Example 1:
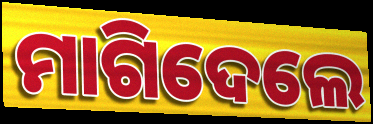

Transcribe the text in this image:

ମାଗିଦେଲେ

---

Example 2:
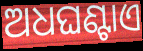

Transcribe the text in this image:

ଅଧଘଣ୍ଟାଏ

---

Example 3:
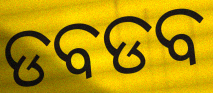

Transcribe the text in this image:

ଡବଡବ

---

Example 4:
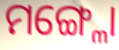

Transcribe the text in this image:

ମଙ୍ଗ୍ଳୋ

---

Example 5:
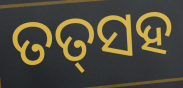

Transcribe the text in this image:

ତତ୍‌ସହ